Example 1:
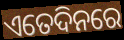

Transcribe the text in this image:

ଏତେଦିନରେ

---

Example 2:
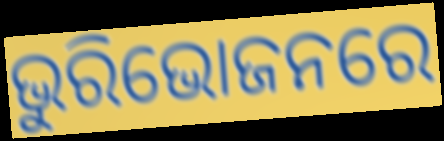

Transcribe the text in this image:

ଭୁରିଭୋଜନରେ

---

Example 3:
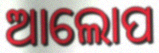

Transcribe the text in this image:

ଆଲୋପ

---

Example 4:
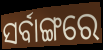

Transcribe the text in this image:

ସର୍ବାଙ୍ଗରେ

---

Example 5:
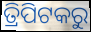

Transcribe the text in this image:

ତ୍ରିପିଟକରୁ